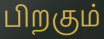
பிறகும்